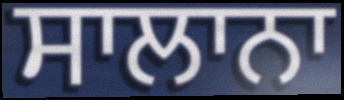
ਸਾਲਾਨਾ